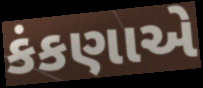
કંકણાએ